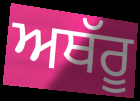
ਅਥੱਰੂ